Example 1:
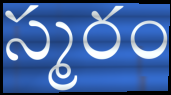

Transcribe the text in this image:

స్మరం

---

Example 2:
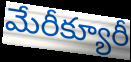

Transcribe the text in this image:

మేరీక్యూరీ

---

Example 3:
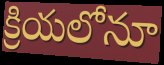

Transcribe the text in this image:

క్రియలోనూ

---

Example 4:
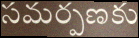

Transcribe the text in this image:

సమర్పణకు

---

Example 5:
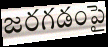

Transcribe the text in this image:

జరగడంపై